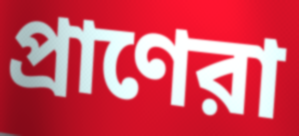
প্রাণেরা